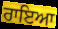
ਰਾਇਆ